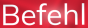
Befehl